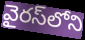
వైరస్‌లోని